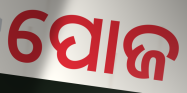
ପୋଜ